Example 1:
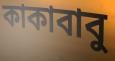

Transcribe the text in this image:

কাকাবাবু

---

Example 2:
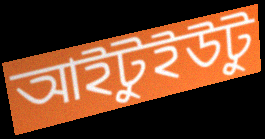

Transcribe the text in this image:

আইটুইউটু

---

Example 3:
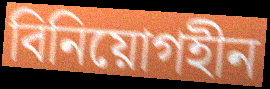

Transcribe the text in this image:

বিনিয়োগহীন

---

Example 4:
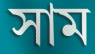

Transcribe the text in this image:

সাম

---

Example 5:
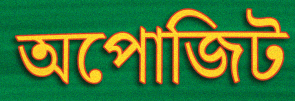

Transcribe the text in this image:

অপোজিট